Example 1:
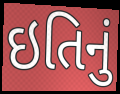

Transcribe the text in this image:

ઇતિનું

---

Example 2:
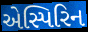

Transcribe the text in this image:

એસ્પિરિન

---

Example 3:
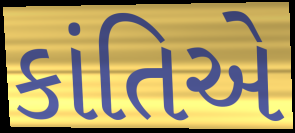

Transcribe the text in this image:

કાંતિએ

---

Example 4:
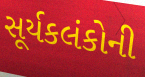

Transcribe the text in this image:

સૂર્યકલંકોની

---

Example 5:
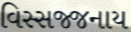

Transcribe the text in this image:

વિસ્સજ્જનાય